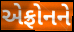
એફ્રોનને